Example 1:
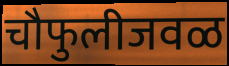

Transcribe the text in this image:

चौफुलीजवळ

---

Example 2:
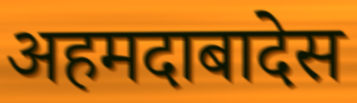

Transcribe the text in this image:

अहमदाबादेस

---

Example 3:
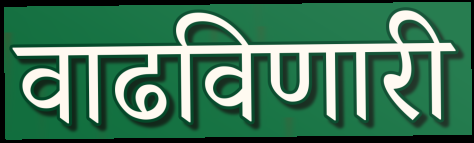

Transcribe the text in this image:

वाढविणारी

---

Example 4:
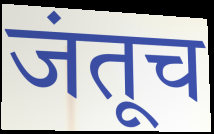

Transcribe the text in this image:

जंतूच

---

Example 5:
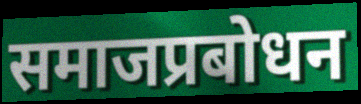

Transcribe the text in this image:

समाजप्रबोधन